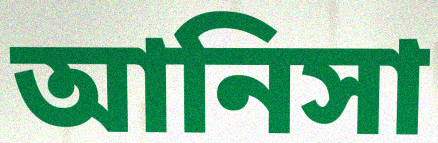
আনিসা